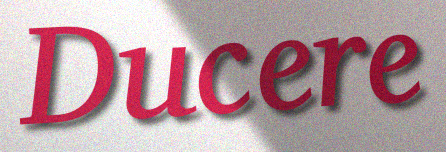
Ducere